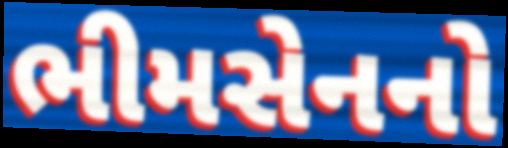
ભીમસેનનો